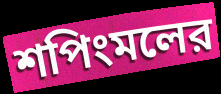
শপিংমলের